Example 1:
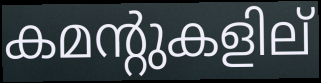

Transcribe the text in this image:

കമന്റുകളില്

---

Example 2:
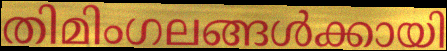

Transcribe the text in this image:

തിമിംഗലങ്ങൾക്കായി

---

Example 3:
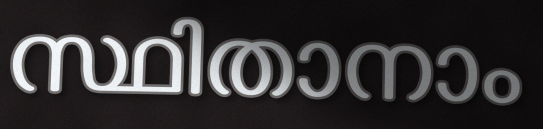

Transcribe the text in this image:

സ്ഥിതാനാം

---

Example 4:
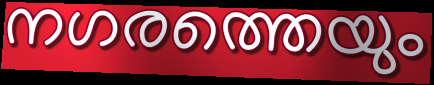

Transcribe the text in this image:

നഗരത്തെയും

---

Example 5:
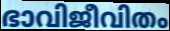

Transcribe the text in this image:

ഭാവിജീവിതം